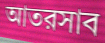
আতরসাব